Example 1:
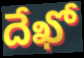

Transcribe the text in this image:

దేఖో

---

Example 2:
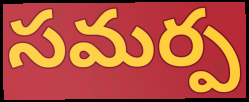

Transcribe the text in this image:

సమర్ప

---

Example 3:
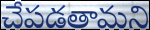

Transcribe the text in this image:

చేపడతామని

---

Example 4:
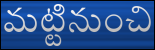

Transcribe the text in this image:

మట్టినుంచి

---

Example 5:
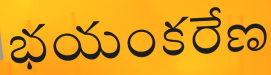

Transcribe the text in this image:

భయంకరేణ